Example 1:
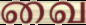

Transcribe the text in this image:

வை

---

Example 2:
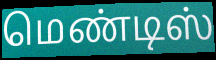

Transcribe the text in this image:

மெண்டிஸ்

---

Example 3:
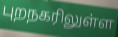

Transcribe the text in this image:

புறநகரிலுள்ள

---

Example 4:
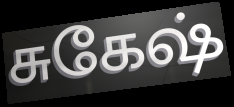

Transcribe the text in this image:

சுகேஷ்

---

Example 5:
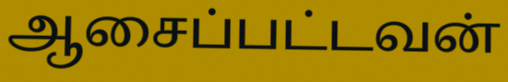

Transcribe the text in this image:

ஆசைப்பட்டவன்